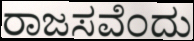
ರಾಜಸವೆಂದು